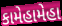
કામેહામેહા